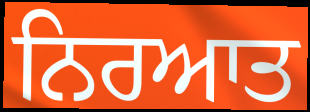
ਨਿਰਆਤ